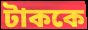
টাককে